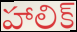
హాలిక్